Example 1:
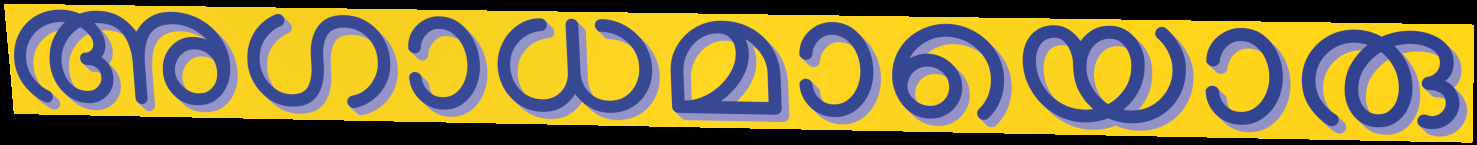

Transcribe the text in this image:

അഗാധമായൊരു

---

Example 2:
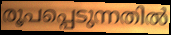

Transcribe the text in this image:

രൂപപ്പെടുന്നതിൽ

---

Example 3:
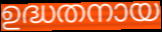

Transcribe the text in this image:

ഉദ്ധതനായ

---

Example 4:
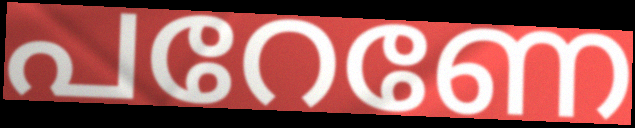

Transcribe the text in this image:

പറേണേ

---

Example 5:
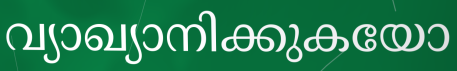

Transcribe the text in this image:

വ്യാഖ്യാനിക്കുകയോ